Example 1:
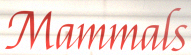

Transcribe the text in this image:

Mammals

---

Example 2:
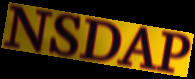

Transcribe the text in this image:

NSDAP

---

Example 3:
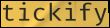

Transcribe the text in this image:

tickify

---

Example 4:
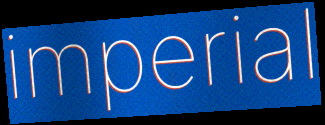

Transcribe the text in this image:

imperial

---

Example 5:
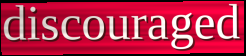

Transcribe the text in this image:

discouraged